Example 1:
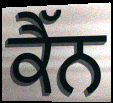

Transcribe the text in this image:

ਕੈੱਨ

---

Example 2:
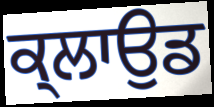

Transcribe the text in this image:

ਕ੍ਲਾਉਡ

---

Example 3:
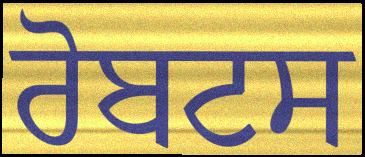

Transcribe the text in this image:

ਰੋਬਟਸ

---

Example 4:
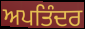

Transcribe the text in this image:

ਅਪਤਿੰਦਰ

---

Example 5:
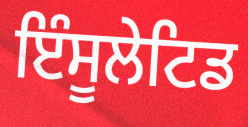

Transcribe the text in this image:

ਇੰਸੂਲੇਟਿਡ